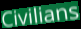
Civilians